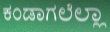
ಕಂಡಾಗಲೆಲ್ಲಾ